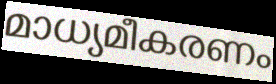
മാധ്യമീകരണം